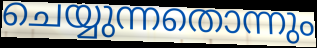
ചെയ്യുന്നതൊന്നും